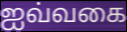
ஐவ்வகை